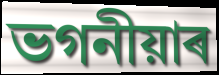
ভগনীয়াৰ